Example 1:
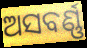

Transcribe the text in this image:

ଅସବର୍ଣ୍ଣ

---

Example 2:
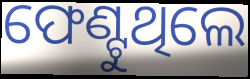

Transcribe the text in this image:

ଫେଣ୍ଟୁଥିଲେ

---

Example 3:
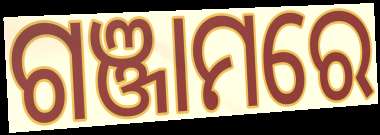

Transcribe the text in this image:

ଗଞ୍ଜାମରେ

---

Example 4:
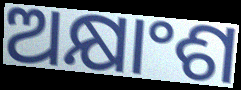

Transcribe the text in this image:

ଅକ୍ଷାଂଶ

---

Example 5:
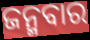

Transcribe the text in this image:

ଜନ୍ମବାର